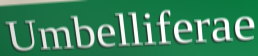
Umbelliferae